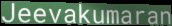
Jeevakumaran